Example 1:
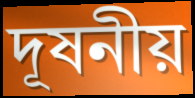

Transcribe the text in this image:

দূষনীয়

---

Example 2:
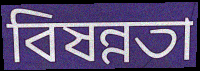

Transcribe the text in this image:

বিষন্নতা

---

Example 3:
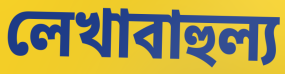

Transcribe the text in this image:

লেখাবাহুল্য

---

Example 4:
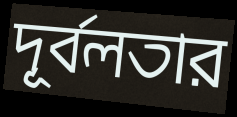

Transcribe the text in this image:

দূর্বলতার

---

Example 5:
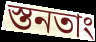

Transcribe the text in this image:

স্তনতাং